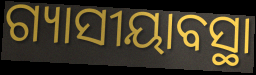
ଗ୍ୟାସୀୟାବସ୍ଥା